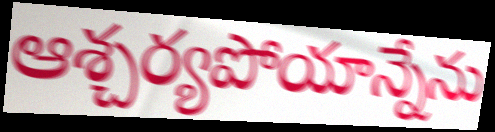
ఆశ్చర్యపోయాన్నేను